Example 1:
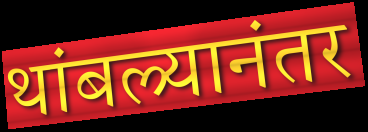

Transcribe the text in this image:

थांबल्यानंतर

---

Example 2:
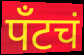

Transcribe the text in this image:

पँटचं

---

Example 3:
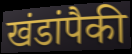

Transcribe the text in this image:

खंडांपैकी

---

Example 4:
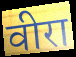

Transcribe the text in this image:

वीरा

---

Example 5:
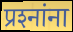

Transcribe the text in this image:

प्रश्‍नांना